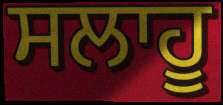
ਸਲਾਹੂ